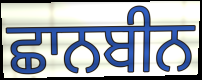
ਛਾਨਬੀਨ